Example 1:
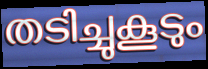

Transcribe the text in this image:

തടിച്ചുകൂടും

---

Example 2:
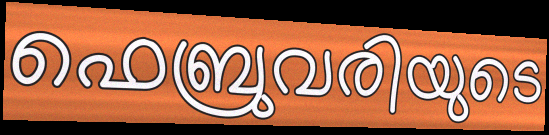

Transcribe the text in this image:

ഫെബ്രുവരിയുടെ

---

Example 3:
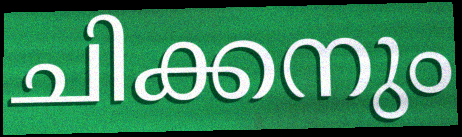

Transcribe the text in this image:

ചിക്കനും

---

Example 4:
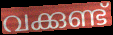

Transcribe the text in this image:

വക്കുണ്ട്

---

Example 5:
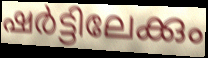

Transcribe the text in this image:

ഷർട്ടിലേക്കും